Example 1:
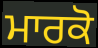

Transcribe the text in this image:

ਮਾਰਕੋ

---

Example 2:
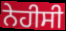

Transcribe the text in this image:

ਨੇਹੀਸੀ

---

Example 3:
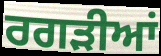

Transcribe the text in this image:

ਰਗੜੀਆਂ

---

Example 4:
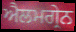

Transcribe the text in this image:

ਐਲਮਗ੍ਰੇਨ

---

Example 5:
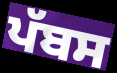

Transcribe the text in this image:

ਪੱਬਸ